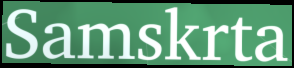
Samskrta